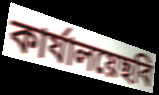
কার্যালয়েছবি